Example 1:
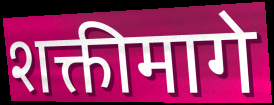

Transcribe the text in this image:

शक्तीमागे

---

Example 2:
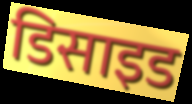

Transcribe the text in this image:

डिसाइड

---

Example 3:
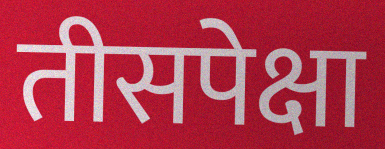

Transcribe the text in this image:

तीसपेक्षा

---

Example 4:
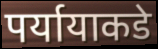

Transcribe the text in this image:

पर्यायाकडे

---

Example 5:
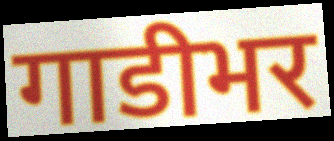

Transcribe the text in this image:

गाडीभर